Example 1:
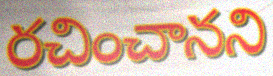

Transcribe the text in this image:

రచించానని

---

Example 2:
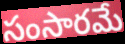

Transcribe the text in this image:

సంసారమే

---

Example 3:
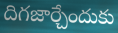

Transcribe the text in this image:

దిగజార్చేందుకు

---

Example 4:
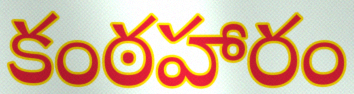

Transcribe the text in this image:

కంఠహారం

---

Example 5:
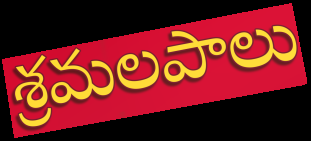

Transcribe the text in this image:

శ్రమలపాలు